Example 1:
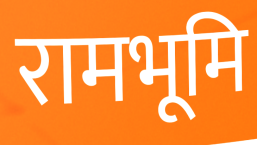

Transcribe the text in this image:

रामभूमि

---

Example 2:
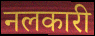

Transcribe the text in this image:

नलकारी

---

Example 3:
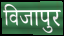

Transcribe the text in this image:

विजापुर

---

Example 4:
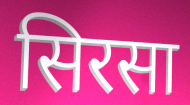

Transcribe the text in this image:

सिरसा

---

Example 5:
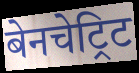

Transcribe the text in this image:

बेनचेट्रिट